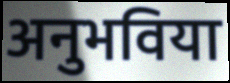
अनुभविया